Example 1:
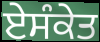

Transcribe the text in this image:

ਏਸੰਕੇਤ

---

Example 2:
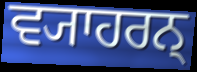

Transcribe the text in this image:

ਵ੍ਯਾਹਰਨ੍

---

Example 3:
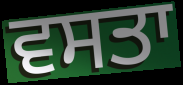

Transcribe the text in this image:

ਵਸਤਾ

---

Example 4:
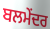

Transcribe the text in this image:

ਬਲਮੇਂਦਰ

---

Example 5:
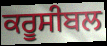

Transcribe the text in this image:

ਕਰੂਸੀਬਲ